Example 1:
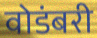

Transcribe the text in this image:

वोडंबरी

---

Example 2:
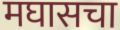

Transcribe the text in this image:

मघासचा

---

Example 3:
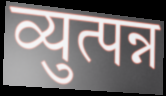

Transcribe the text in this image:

व्युत्पन्न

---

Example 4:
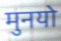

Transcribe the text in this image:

मुनयो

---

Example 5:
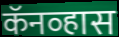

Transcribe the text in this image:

कॅनव्हास